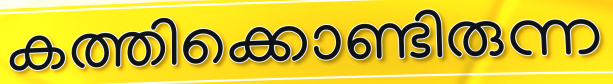
കത്തിക്കൊണ്ടിരുന്ന